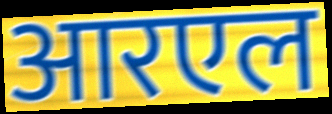
आरएल